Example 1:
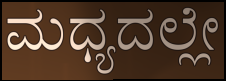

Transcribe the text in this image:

ಮಧ್ಯದಲ್ಲೇ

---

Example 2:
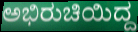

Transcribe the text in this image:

ಅಭಿರುಚಿಯಿದ್ದ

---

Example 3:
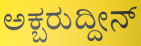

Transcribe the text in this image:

ಅಕ್ಬರುದ್ದೀನ್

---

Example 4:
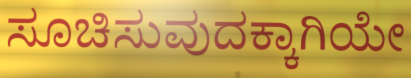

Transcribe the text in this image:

ಸೂಚಿಸುವುದಕ್ಕಾಗಿಯೇ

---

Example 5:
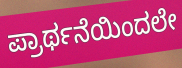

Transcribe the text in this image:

ಪ್ರಾರ್ಥನೆಯಿಂದಲೇ